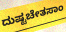
ದುಷ್ಟಚೇತಸಾಂ